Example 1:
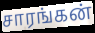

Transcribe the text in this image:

சாரங்கன்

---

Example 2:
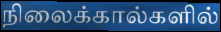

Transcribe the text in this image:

நிலைக்கால்களில்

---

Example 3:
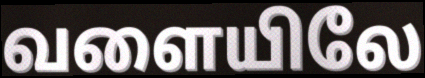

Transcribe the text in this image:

வளையிலே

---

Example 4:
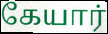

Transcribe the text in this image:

கேயார்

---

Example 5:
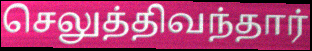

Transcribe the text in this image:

செலுத்திவந்தார்